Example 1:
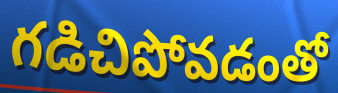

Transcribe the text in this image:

గడిచిపోవడంతో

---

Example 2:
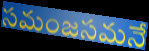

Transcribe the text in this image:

సమంజసమనే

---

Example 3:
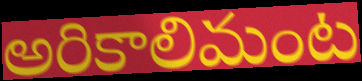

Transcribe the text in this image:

అరికాలిమంట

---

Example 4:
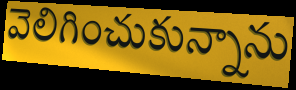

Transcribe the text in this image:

వెలిగించుకున్నాను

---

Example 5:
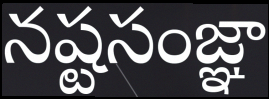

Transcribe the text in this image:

నష్టసంజ్ఞా